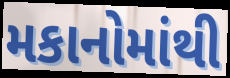
મકાનોમાંથી